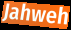
Jahweh